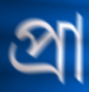
প্রা